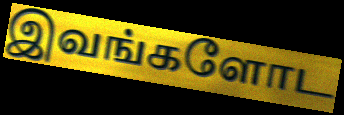
இவங்களோட